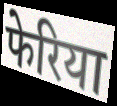
फेरिया